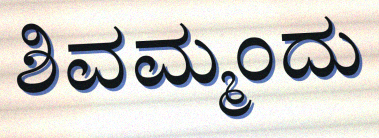
ಶಿವಮ್ಮಂದು